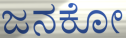
ಜನಕೋ